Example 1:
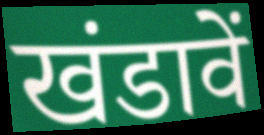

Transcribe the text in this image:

खंडावें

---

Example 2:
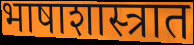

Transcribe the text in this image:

भाषाशास्त्रात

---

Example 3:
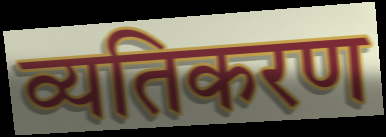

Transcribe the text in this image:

व्यतिकरण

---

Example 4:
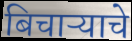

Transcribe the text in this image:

बिचाऱ्याचे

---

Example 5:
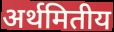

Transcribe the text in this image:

अर्थमितीय